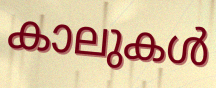
കാലുകൾ